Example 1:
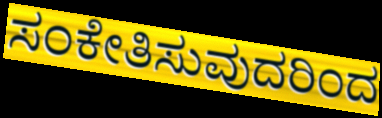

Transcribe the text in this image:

ಸಂಕೇತಿಸುವುದರಿಂದ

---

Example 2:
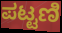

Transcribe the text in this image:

ಪಟ್ಟಣಿ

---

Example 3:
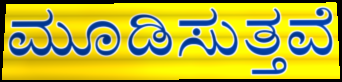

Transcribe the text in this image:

ಮೂಡಿಸುತ್ತವೆ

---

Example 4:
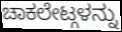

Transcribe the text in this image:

ಚಾಕಲೇಟ್ಗಳನ್ನು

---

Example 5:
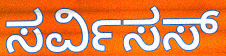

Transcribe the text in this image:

ಸರ್ವಿಸಸ್